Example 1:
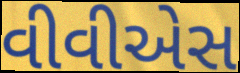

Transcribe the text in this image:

વીવીએસ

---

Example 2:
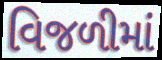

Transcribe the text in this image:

વિજળીમાં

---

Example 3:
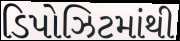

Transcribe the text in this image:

ડિપોઝિટમાંથી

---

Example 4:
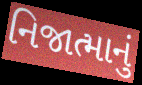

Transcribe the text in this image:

નિજાત્માનું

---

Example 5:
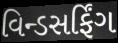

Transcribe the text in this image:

વિન્ડસર્ફિંગ